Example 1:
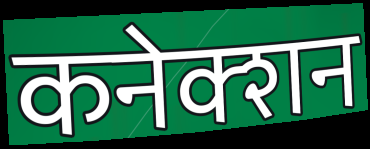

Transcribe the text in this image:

कनेक्शन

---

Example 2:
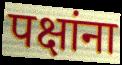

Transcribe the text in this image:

पक्षांना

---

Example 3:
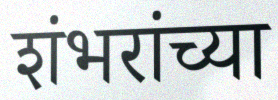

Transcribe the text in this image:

शंभरांच्या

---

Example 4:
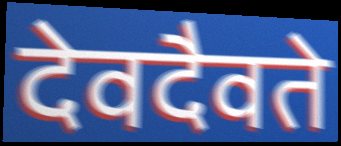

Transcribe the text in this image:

देवदैवते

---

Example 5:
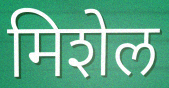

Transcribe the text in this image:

मिशेल